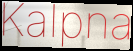
Kalpna